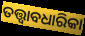
ତତ୍ତ୍ୱାବଧାରିକା